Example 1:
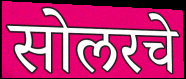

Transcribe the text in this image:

सोलरचे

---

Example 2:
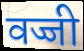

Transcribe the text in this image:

वज्जी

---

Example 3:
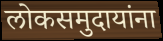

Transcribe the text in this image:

लोकसमुदायांना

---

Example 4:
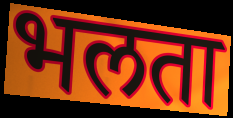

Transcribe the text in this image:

भलता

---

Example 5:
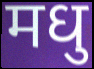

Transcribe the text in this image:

मधु